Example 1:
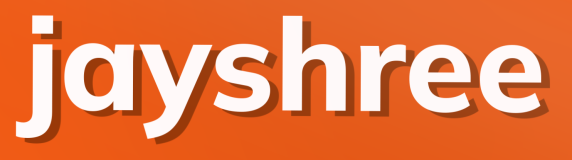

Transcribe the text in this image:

jayshree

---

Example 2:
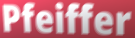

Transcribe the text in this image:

Pfeiffer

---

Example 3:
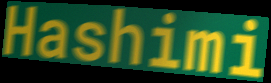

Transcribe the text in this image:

Hashimi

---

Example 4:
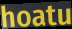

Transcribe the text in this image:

hoatu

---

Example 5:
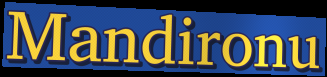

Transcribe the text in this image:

Mandironu